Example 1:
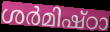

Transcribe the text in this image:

ശർമിഷ്ഠാ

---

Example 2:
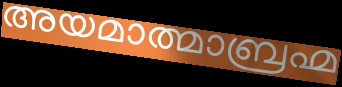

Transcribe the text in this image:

അയമാത്മാബ്രഹ്മ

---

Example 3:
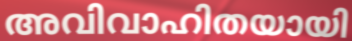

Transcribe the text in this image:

അവിവാഹിതയായി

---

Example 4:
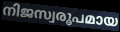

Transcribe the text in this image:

നിജസ്വരൂപമായ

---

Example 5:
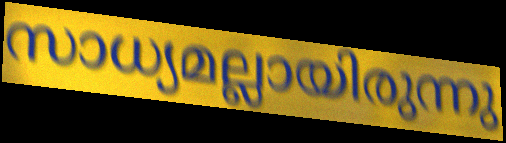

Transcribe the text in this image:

സാധ്യമല്ലായിരുന്നു